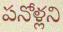
పనోళ్లని